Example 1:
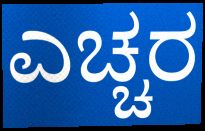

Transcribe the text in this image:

ಎಚ್ಚರ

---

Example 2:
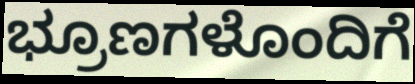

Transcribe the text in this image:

ಭ್ರೂಣಗಳೊಂದಿಗೆ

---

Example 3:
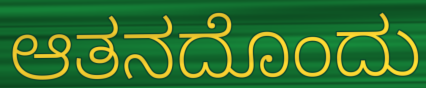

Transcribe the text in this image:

ಆತನದೊಂದು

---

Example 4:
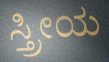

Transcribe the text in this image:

ಸ್ತ್ರೀಯ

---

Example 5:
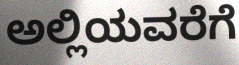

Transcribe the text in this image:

ಅಲ್ಲಿಯವರೆಗೆ